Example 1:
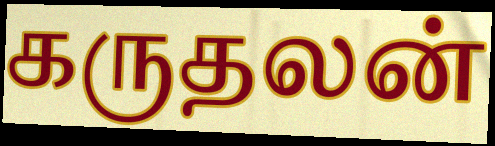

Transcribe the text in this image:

கருதலன்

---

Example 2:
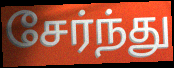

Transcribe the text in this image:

சேர்ந்து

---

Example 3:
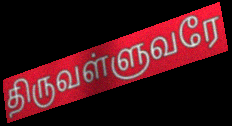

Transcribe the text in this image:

திருவள்ளுவரே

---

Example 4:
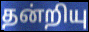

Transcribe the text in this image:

தன்றியு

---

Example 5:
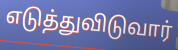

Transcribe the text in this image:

எடுத்துவிடுவார்